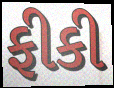
ફીકી